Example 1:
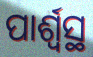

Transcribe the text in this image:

ପାର୍ଶ୍ୱସ୍ଥ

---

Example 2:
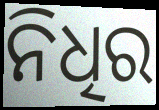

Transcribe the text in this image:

ନିଧିର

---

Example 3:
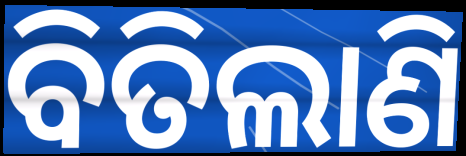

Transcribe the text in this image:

ବିତିଲାଣି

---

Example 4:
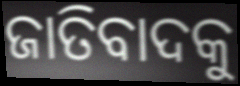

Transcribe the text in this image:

ଜାତିବାଦକୁ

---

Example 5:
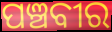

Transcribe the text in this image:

ପଞ୍ଚବୀର